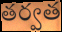
తర్వత